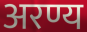
अरण्य